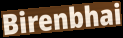
Birenbhai